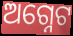
ଅଗ୍ନେଟ